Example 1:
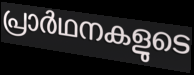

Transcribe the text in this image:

പ്രാർഥനകളുടെ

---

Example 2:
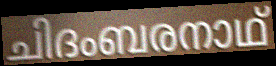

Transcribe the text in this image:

ചിദംബരനാഥ്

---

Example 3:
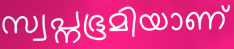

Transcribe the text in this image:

സ്വപ്നഭൂമിയാണ്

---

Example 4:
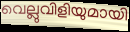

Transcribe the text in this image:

വെല്ലുവിളിയുമായി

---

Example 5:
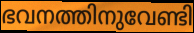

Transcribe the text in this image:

ഭവനത്തിനുവേണ്ടി